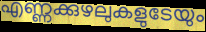
എണ്ണക്കുഴലുകളുടേയും